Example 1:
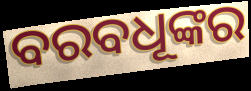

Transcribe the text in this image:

ବରବଧୂଙ୍କର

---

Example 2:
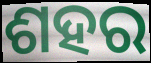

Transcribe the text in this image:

ଶହର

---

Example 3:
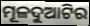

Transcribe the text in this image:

ମୂଳଦୁଆଟିର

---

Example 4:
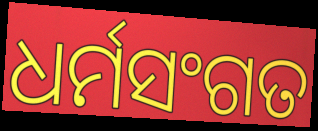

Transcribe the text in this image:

ଧର୍ମସଂଗତ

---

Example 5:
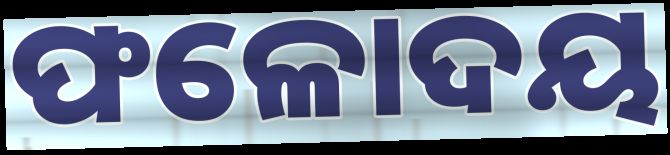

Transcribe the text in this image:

ଫଳୋଦୟ